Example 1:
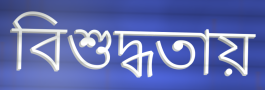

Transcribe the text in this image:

বিশুদ্ধতায়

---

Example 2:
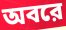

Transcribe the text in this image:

অবরে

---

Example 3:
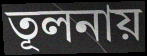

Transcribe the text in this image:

তূলনায়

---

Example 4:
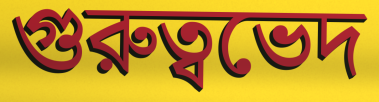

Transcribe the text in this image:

গুরুত্বভেদ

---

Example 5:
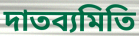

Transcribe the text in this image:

দাতব্যমিতি